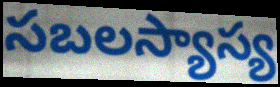
సబలస్యాస్య